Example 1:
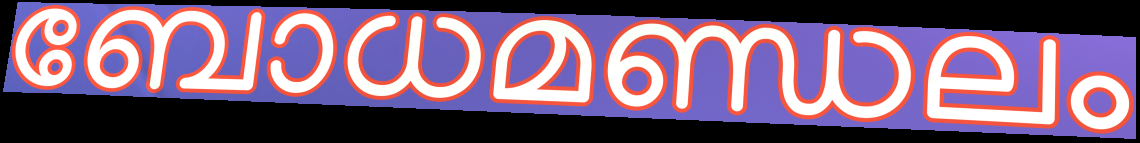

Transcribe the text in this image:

ബോധമണ്ഡലം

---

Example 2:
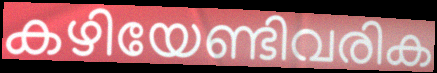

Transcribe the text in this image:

കഴിയേണ്ടിവരിക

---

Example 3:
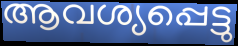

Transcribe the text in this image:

ആവശ്യപ്പെട്ടു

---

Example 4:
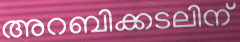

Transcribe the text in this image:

അറബിക്കടലിന്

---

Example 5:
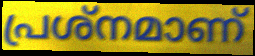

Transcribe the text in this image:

പ്രശ്നമാണ്